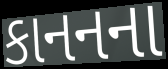
કાનનના